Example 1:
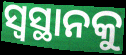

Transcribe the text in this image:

ସ୍ୱସ୍ଥାନକୁ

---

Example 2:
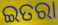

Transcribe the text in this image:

ଇତରା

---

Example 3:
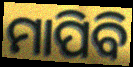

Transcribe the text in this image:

ମାପିବି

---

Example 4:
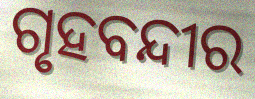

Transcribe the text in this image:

ଗୃହବନ୍ଦୀର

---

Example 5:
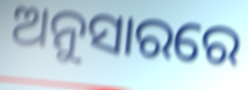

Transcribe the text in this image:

ଅନୁସାରରେ